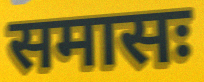
समासः